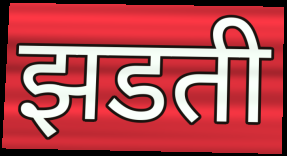
झडती